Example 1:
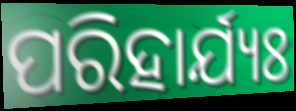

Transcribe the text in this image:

ପରିହାର୍ଯ୍ୟଃ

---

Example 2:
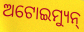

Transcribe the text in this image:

ଅଟୋଇମ୍ୟୁନ୍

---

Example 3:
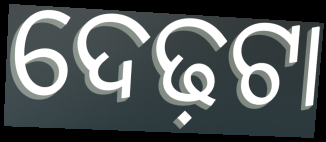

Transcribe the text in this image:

ଦେଢ଼ଟା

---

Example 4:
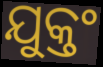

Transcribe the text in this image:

ଯୁକ୍ତଂ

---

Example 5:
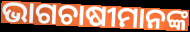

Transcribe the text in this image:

ଭାଗଚାଷୀମାନଙ୍କ